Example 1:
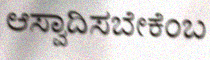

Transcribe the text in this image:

ಆಸ್ವಾದಿಸಬೇಕೆಂಬ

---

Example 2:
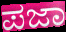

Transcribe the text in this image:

ಪಜಾ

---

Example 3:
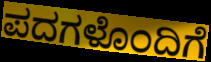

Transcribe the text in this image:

ಪದಗಳೊಂದಿಗೆ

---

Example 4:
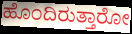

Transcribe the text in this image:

ಹೊಂದಿರುತ್ತಾರೋ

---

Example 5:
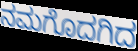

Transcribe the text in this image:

ನಮಗೊದಗಿದ